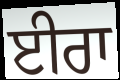
ਈਰਾ